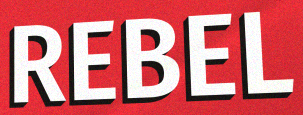
REBEL